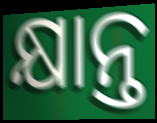
କ୍ଷାନ୍ତ